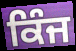
ਕਿੰਜ